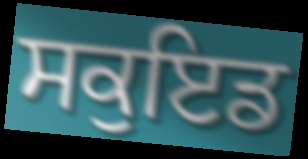
ਸਕੁਇਡ